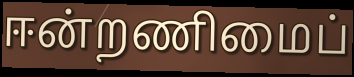
ஈன்றணிமைப்